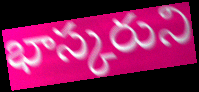
భాస్కరుని